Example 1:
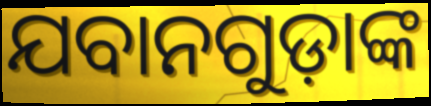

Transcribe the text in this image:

ଯବାନଗୁଡ଼ାଙ୍କ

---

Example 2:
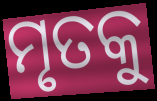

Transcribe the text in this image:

ମୃତକୁ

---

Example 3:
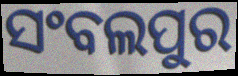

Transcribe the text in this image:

ସଂବଲପୁର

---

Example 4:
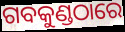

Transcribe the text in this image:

ଗବକୁଣ୍ଡଠାରେ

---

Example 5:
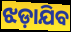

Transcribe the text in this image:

ଝଡ଼ାଯିବ